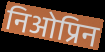
निओप्रिन